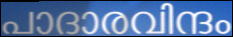
പാദാരവിന്ദം